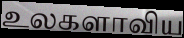
உலகளாவிய